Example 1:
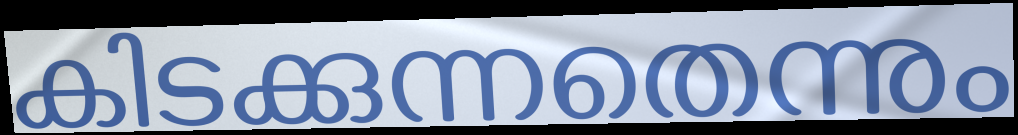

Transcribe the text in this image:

കിടക്കുന്നതെന്നും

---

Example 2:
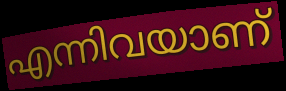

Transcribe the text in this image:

എന്നിവയാണ്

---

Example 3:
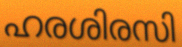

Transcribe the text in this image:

ഹരശിരസി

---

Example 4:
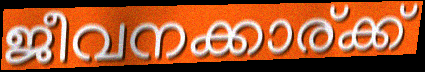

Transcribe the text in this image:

ജീവനക്കാര്ക്ക്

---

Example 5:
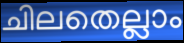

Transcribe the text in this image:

ചിലതെല്ലാം